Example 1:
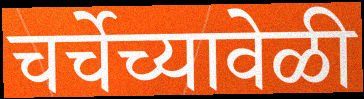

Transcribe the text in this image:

चर्चेच्यावेळी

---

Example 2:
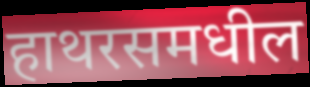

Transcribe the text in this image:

हाथरसमधील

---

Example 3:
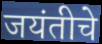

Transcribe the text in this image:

जयंतीचे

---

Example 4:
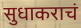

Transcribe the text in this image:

सुधाकराचं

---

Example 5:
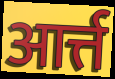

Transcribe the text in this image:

आर्त्त